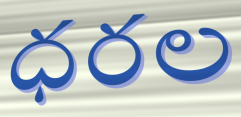
ధరల